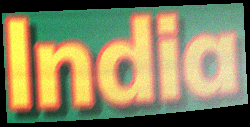
lndia